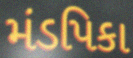
મંડપિકા